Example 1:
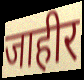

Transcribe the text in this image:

जाहीर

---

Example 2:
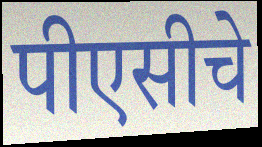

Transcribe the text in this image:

पीएसीचे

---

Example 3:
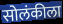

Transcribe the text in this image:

सोलंकीला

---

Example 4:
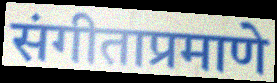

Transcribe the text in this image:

संगीताप्रमाणे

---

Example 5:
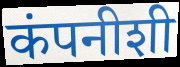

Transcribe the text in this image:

कंपनीशी